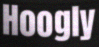
Hoogly